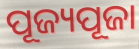
ପୂଜ୍ୟପୂଜା